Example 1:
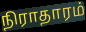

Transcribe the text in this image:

நிராதாரம்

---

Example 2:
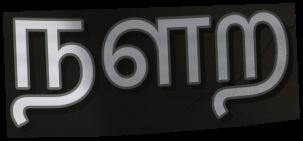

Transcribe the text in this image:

நளற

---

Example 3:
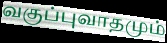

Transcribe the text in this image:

வகுப்புவாதமும்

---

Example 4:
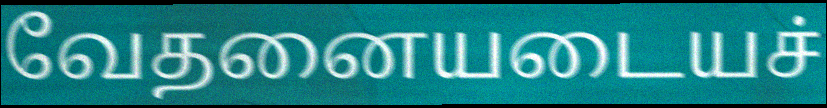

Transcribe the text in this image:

வேதனையடையச்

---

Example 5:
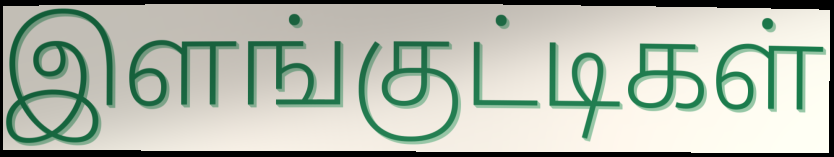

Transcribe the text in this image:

இளங்குட்டிகள்